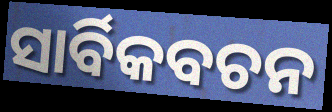
ସାର୍ବିକବଚନ